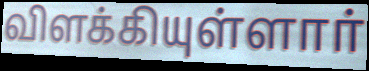
விளக்கியுள்ளார்